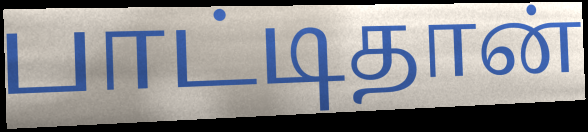
பாட்டிதான்